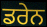
ਡਰੇਨ